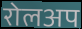
रोलअप